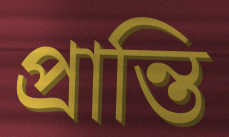
প্রান্তি